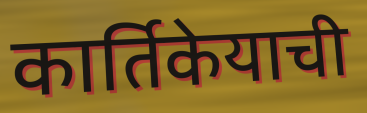
कार्तिकेयाची